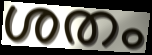
ശതം